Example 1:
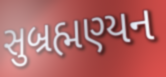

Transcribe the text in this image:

સુબ્રહ્મણ્યન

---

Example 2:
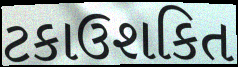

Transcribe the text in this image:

ટકાઉશકિત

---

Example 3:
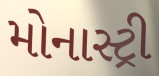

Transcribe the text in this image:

મોનાસ્ટ્રી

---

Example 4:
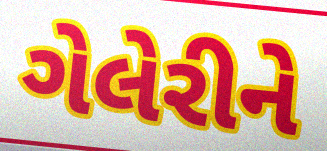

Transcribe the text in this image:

ગેલેરીને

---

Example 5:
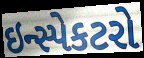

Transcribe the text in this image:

ઇન્સ્પેકટરો